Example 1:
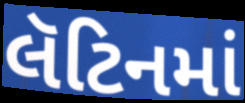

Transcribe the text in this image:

લૅટિનમાં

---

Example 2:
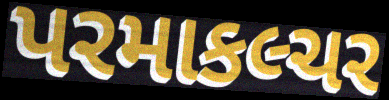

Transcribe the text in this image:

પરમાકલ્ચર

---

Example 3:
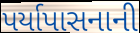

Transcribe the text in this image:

પર્યાપાસનાની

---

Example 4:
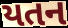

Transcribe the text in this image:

યતન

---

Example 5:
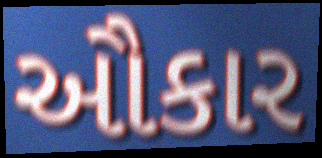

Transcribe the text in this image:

ઔકાર